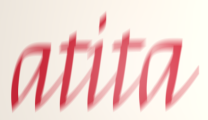
atita